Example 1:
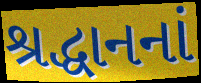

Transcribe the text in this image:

શ્રદ્ધાનનાં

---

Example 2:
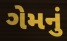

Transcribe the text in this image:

ગેમનું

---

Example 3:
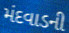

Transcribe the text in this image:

મંદવાડની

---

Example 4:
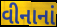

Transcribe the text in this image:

વીનાનાં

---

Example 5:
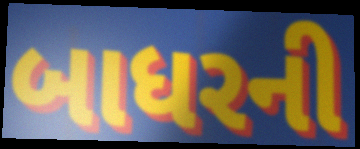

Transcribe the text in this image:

બાધરની